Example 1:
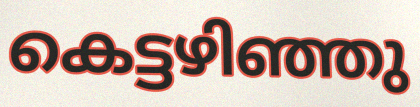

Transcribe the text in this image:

കെട്ടഴിഞ്ഞു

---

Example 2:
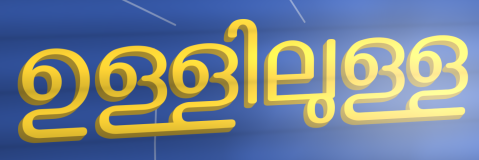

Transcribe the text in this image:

ഉള്ളിലുള്ള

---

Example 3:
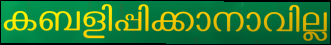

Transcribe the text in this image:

കബളിപ്പിക്കാനാവില്ല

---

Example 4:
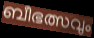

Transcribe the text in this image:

ബീഭത്സവും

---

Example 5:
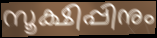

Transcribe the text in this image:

സൂക്ഷിപ്പിനും